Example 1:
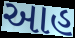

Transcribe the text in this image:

આહ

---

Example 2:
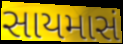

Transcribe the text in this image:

સાયમાસં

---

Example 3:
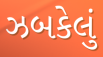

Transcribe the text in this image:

ઝબકેલું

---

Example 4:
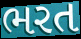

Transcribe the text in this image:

ભરત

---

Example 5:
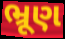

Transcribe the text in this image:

ભ્રૂણ